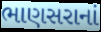
ભાણસરાનાં